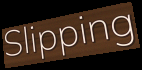
Slipping